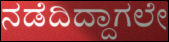
ನಡೆದಿದ್ದಾಗಲೇ